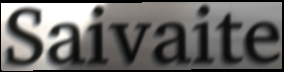
Saivaite